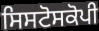
ਸਿਸਟੋਸਕੋਪੀ